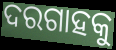
ଦରଗାହକୁ